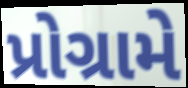
પ્રોગ્રામે